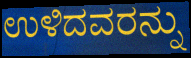
ಉಳಿದವರನ್ನು